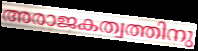
അരാജകത്വത്തിനു